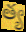
త్య